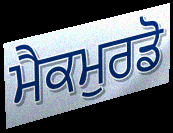
ਮੈਕਮੁਰਡੋ